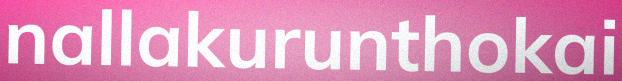
nallakurunthokai